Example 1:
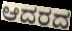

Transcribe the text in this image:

ಆದರದ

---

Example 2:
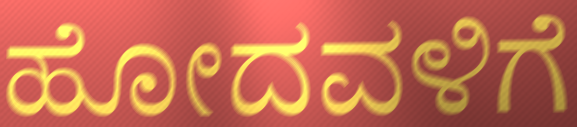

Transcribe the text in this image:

ಹೋದವಳಿಗೆ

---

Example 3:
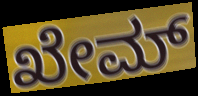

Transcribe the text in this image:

ಖೇಮ್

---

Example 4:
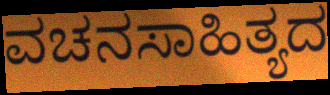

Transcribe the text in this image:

ವಚನಸಾಹಿತ್ಯದ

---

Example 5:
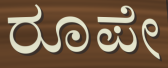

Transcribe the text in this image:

ರೂಪೇ